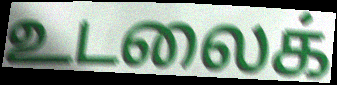
உடலைக்